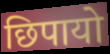
छिपायो